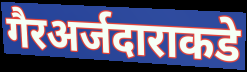
गैरअर्जदाराकडे